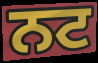
ਨਟ